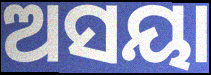
ଅସୟା